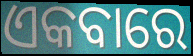
ଏକବାରେ